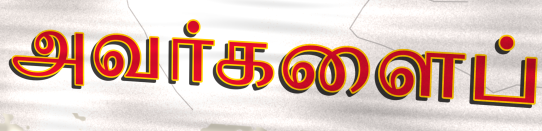
அவர்களைப்